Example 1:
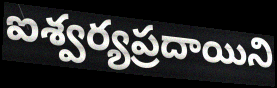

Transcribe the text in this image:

ఐశ్వర్యప్రదాయిని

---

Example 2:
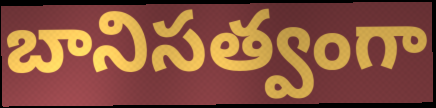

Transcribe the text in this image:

బానిసత్వంగా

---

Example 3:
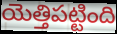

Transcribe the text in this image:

యెత్తిపట్టింది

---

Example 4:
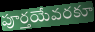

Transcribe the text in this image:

పూర్తయేవరకూ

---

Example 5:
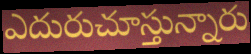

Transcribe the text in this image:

ఎదురుచూస్తున్నారు